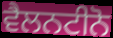
ਵੈਲਨਟੀਨੋ